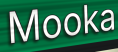
Mooka